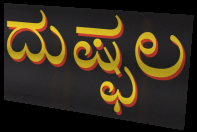
ದುಷ್ಫಲ